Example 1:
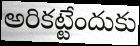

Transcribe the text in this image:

అరికట్టేందుకు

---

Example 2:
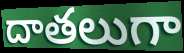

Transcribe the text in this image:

దాతలుగా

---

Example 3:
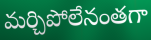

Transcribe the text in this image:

మర్చిపోలేనంతగా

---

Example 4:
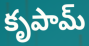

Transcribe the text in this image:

కృపామ్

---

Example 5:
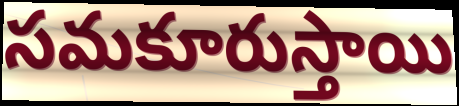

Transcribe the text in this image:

సమకూరుస్తాయి